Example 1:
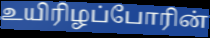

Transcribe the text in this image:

உயிரிழப்போரின்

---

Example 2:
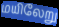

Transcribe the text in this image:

மயிலேறு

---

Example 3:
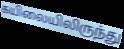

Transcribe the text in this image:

கயிலையிலிருந்து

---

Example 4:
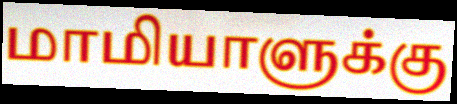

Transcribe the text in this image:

மாமியாளுக்கு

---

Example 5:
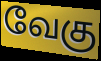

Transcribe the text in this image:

வேகு